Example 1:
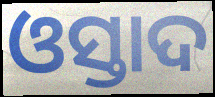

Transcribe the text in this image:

ଓସ୍ତାଦ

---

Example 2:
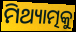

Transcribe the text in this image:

ମିଥ୍ୟାତ୍ମକୁ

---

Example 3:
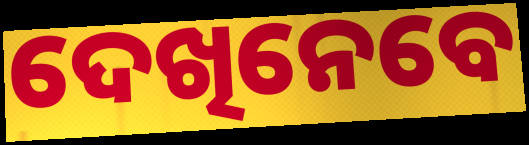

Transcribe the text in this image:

ଦେଖିନେବେ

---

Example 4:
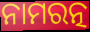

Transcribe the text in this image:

ନାମରତ୍ନ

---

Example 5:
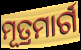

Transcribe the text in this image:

ମୂତ୍ରମାର୍ଗ